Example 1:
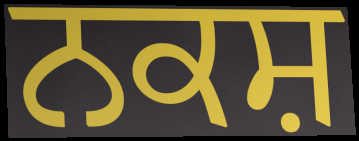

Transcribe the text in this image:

ਨਕਸ਼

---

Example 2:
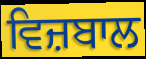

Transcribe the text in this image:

ਵਿਜ਼ਬਾਲ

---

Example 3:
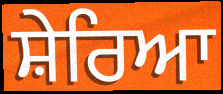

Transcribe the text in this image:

ਸ਼ੇਰਿਆ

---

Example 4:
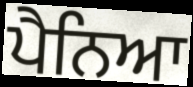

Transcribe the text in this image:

ਪੈਨਿਆ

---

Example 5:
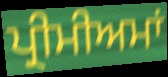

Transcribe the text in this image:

ਪ੍ਰੀਮੀਅਮਾਂ